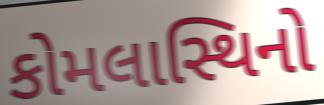
કોમલાસ્થિનો